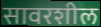
सावरशील